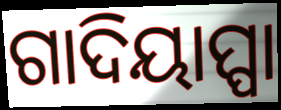
ଗାଦିୟାପ୍ପା